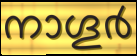
നാഗൂർ